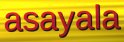
asayala